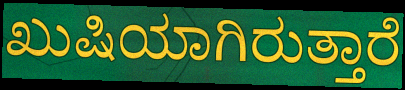
ಖುಷಿಯಾಗಿರುತ್ತಾರೆ